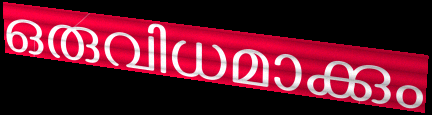
ഒരുവിധമാക്കും